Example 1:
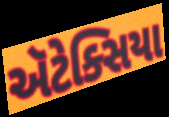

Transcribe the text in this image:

ઍટેક્સિયા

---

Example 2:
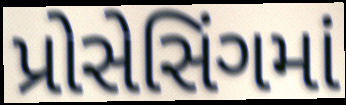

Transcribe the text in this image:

પ્રોસેસિંગમાં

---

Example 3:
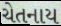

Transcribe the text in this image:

ચેતનાય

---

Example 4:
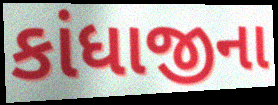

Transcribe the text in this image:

કાંધાજીના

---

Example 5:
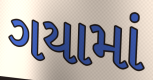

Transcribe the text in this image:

ગયામાં